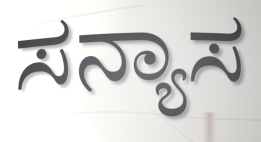
ಸನ್ಯಾಸ